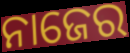
ନାଜେର